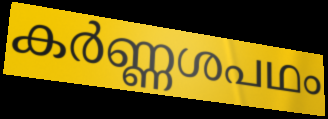
കർണ്ണശപഥം